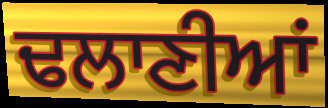
ਢਲਾਣੀਆਂ